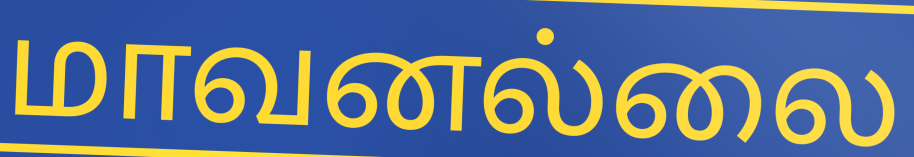
மாவனல்லை